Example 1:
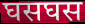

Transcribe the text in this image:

घसघस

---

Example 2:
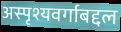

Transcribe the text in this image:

अस्पृश्यवर्गाबद्दल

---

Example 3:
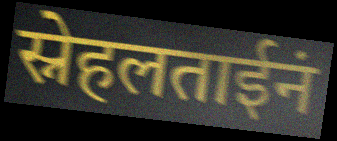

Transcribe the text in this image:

स्नेहलताईनं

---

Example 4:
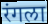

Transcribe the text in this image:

रंगला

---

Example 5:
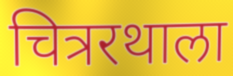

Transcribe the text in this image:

चित्ररथाला